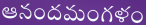
ఆనందమంగళం